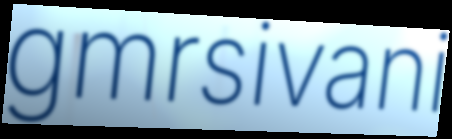
gmrsivani